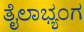
ತೈಲಾಭ್ಯಂಗ